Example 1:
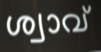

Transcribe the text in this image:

ശ്വാവ്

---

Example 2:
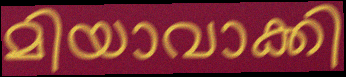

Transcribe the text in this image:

മിയാവാക്കി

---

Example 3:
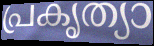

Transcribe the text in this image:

പ്രകൃത്യാ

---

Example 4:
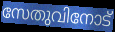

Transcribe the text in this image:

സേതുവിനോട്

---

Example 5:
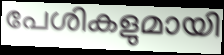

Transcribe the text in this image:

പേശികളുമായി